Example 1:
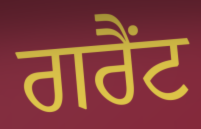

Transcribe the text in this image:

ਗਰੈਂਟ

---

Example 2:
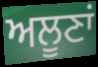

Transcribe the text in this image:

ਅਲੂਣਾਂ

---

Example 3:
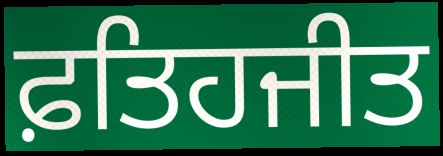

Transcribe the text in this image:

ਫ਼ਤਿਹਜੀਤ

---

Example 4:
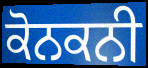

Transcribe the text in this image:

ਕੋਨਕਨੀ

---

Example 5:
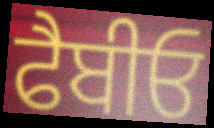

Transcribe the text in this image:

ਫੈਬੀਓ